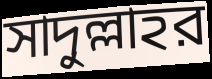
সাদুল্লাহর